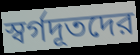
স্বর্গদূতদের